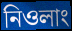
নিওলাং